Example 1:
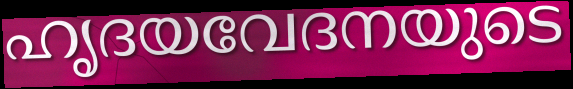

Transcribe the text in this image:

ഹൃദയവേദനയുടെ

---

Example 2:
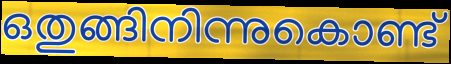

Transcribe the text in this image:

ഒതുങ്ങിനിന്നുകൊണ്ട്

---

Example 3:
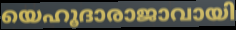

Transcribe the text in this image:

യെഹൂദാരാജാവായി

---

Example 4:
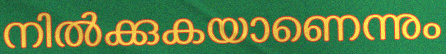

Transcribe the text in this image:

നിൽക്കുകയാണെന്നും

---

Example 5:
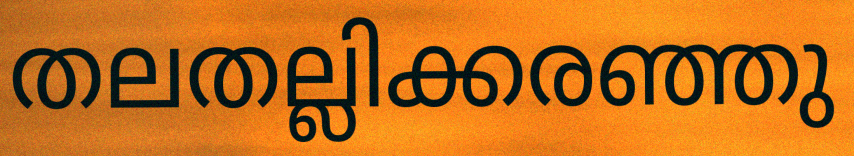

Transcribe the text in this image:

തലതല്ലിക്കരഞ്ഞു